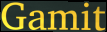
Gamit